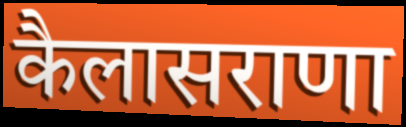
कैलासराणा